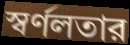
স্বর্ণলতার